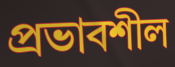
প্রভাবশীল